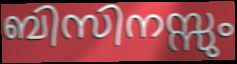
ബിസിനസ്സും